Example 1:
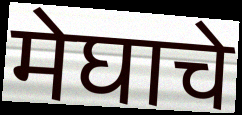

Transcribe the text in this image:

मेघाचे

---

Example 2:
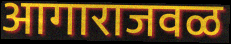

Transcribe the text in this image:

आगाराजवळ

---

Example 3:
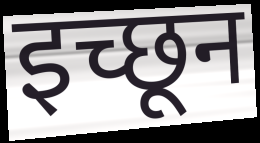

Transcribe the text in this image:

इच्छून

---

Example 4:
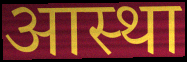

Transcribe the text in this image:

आस्था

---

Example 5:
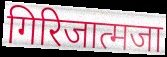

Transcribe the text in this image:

गिरिजात्मजा